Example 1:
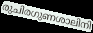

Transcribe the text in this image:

രുചിരഗുണശാലിനി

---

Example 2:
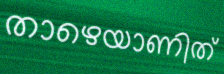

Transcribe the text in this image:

താഴെയാണിത്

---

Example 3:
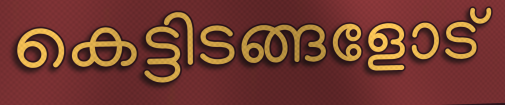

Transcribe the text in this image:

കെട്ടിടങ്ങളോട്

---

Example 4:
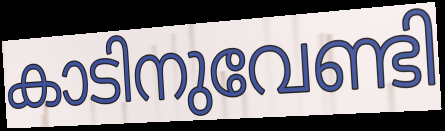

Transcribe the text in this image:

കാടിനുവേണ്ടി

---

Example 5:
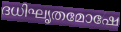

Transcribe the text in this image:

ദധിഘൃതമോഷേ